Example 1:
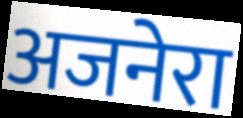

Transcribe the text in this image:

अजनेरा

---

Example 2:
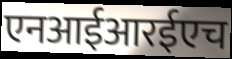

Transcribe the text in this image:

एनआईआरईएच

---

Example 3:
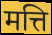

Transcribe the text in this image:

मत्ति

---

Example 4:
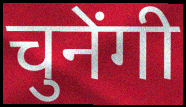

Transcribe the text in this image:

चुनेंगी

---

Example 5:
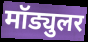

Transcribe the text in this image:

मॉड्युलर